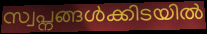
സ്വപ്നങ്ങൾക്കിടയിൽ